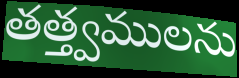
తత్త్వములను